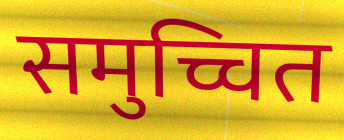
समुच्चित